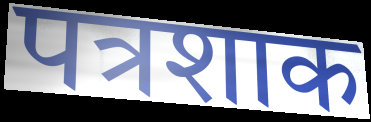
पत्रशाक